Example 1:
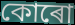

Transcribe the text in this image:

কোৰো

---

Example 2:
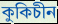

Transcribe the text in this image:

কুকিচীন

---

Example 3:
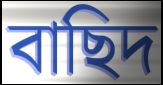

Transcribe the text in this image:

বাছিদ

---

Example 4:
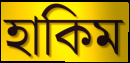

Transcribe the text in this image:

হাকিম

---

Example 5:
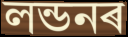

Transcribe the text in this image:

লন্ডনৰ